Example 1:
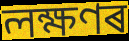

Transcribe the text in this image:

লক্ষণৰ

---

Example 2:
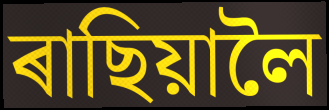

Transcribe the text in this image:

ৰাছিয়ালৈ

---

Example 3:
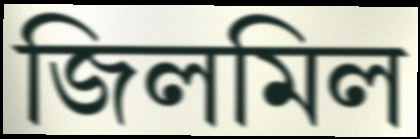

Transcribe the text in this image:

জিলমিল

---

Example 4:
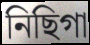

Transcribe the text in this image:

নিছিগা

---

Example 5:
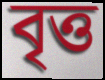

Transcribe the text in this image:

বৃত্ত